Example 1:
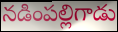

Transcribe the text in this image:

నడింపల్లిగాడు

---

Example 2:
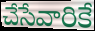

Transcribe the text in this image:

చేసేవారికే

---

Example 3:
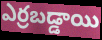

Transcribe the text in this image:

ఎర్రబడ్డాయి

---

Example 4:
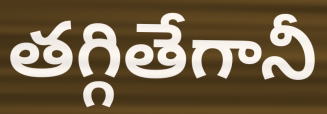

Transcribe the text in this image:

తగ్గితేగానీ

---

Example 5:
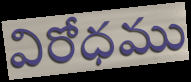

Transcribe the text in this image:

విరోధము